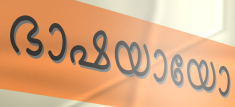
ഭാഷയായോ